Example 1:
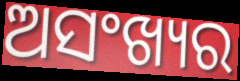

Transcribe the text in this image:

ଅସଂଖ୍ୟର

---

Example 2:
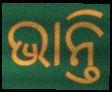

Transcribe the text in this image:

ଭାନ୍ତି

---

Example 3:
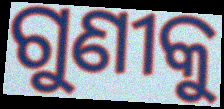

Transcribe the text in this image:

ଗୁଣୀକୁ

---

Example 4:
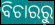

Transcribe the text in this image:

ବିଚାରରୁ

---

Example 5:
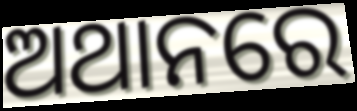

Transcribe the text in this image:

ଅଥାନରେ